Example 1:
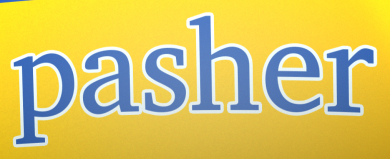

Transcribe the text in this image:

pasher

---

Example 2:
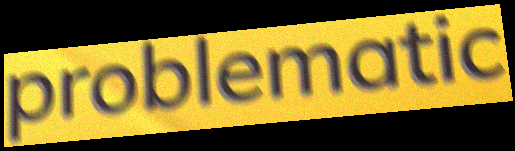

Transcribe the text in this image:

problematic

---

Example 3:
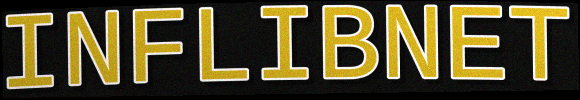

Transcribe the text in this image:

INFLIBNET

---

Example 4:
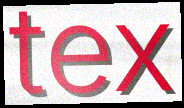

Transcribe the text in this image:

tex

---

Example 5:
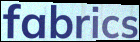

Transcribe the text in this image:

fabrics